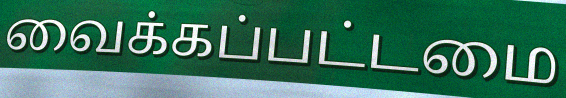
வைக்கப்பட்டமை